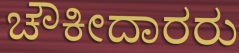
ಚೌಕೀದಾರರು